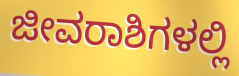
ಜೀವರಾಶಿಗಳಲ್ಲಿ